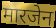
मारजेन